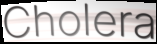
Cholera